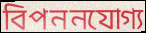
বিপননযোগ্য